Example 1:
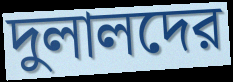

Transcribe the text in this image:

দুলালদের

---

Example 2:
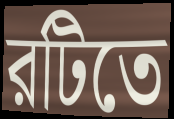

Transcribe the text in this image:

রটিতে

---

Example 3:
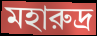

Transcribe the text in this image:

মহারুদ্র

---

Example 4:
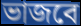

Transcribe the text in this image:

ভাজবে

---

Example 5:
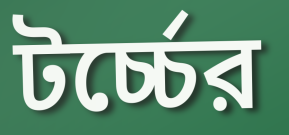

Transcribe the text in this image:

টর্চ্চের